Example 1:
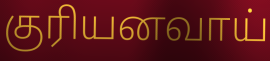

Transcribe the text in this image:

குரியனவாய்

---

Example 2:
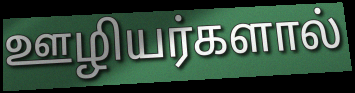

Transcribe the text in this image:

ஊழியர்களால்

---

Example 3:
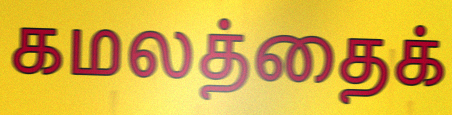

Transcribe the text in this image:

கமலத்தைக்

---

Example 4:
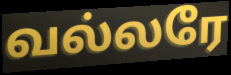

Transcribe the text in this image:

வல்லரே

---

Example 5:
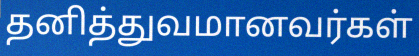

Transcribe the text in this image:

தனித்துவமானவர்கள்